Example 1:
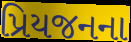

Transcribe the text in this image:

પ્રિયજનના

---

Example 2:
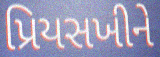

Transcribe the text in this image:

પ્રિયસખીને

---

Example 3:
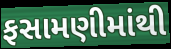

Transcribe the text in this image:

ફસામણીમાંથી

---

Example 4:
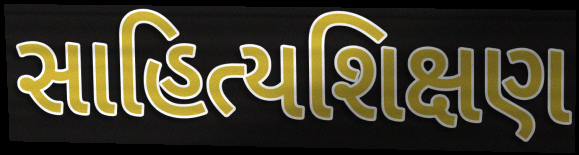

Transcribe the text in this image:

સાહિત્યશિક્ષણ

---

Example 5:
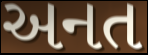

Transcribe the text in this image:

અનત